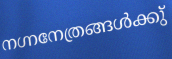
നഗ്നനേത്രങ്ങൾക്കു്